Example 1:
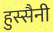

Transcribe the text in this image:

हुस्सैनी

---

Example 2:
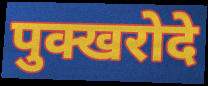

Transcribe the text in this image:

पुक्खरोदे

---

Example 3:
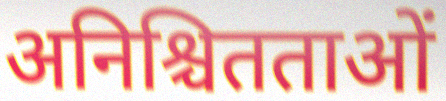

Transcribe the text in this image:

अनिश्चितताओं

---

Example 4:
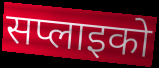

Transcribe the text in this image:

सप्लाइको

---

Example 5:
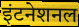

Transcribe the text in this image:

इंटनेशनल